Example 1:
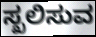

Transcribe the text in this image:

ಸ್ಖಲಿಸುವ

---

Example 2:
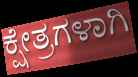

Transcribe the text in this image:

ಕ್ಷೇತ್ರಗಳಾಗಿ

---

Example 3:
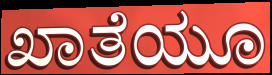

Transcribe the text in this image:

ಖಾತೆಯೂ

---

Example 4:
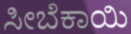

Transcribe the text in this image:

ಸೀಬೆಕಾಯಿ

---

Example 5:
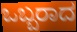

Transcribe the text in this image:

ಒಬ್ಬರಾದ